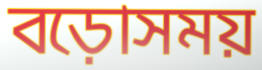
বড়োসময়